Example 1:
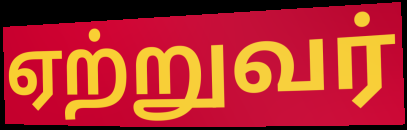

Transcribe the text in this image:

ஏற்றுவர்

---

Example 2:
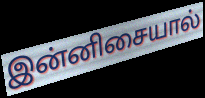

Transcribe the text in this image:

இன்னிசையால்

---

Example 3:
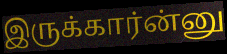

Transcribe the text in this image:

இருக்கார்ன்னு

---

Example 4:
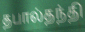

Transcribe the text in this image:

தபால்தந்தி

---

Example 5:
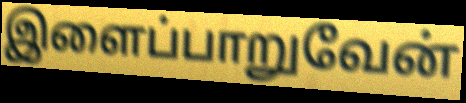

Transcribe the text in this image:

இளைப்பாறுவேன்